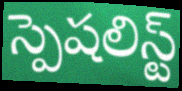
స్పెషలిస్ట్